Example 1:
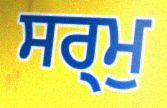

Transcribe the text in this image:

ਸਰ੍ਮੁ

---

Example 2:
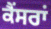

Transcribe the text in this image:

ਕੈਂਸਰਾਂ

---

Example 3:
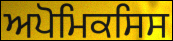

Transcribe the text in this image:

ਅਪੋਮਿਕਸਿਸ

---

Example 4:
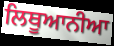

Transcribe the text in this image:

ਲਿਥੂਆਨੀਆ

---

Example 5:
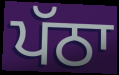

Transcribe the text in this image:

ਪੱਠਾ